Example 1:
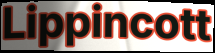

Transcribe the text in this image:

Lippincott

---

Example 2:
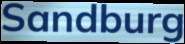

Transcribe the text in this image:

Sandburg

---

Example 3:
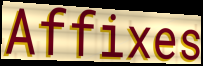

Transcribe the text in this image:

Affixes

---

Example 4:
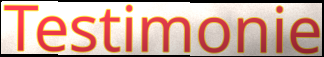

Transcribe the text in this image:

Testimonie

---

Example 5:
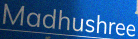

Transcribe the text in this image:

Madhushree